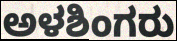
ಅಳಶಿಂಗರು